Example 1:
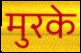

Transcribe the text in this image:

मुरके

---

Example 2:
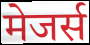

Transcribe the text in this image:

मेजर्स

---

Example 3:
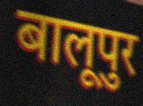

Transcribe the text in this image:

बालूपुर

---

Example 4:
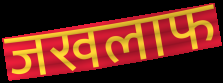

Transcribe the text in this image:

जखलाफ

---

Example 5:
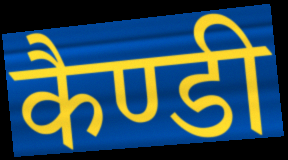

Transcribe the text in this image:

कैण्डी